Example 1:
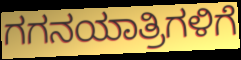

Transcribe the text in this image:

ಗಗನಯಾತ್ರಿಗಳಿಗೆ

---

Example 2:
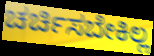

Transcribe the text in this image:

ಚರ್ಚಿಸಬೇಕಿಲ್ಲ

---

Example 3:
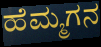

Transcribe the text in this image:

ಹೆಮ್ಮಗನ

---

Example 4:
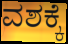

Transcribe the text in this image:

ವಶಕ್ಕೆ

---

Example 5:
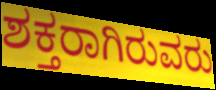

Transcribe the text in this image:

ಶಕ್ತರಾಗಿರುವರು